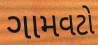
ગામવટો